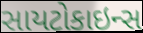
સાયટોકાઇન્સ